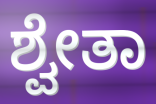
ಶ್ವೇತಾ